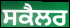
ਸਕੈਲਰ